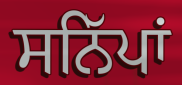
ਸਨਿੱਪਾਂ